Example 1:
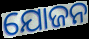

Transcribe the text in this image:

ଯୋଜନ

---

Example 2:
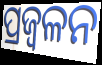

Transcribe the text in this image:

ପ୍ରଜ୍ବଳନ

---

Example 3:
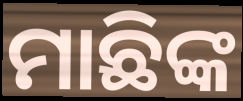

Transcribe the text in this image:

ମାଛିଙ୍କ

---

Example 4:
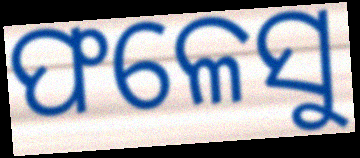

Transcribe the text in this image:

ଫଳେସୁ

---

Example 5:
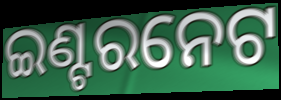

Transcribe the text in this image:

ଇଣ୍ଟରନେଟ